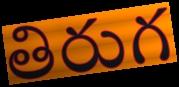
తిరుగ